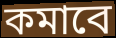
কমাবে